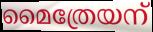
മൈത്രേയന്